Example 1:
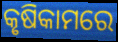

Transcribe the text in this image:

କୃଷିକାମରେ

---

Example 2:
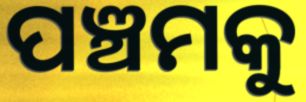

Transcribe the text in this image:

ପଞ୍ଚମକୁ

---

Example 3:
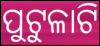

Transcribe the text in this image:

ପୁଟୁଳାଟି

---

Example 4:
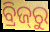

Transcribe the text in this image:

ବ୍ରିଜ୍‌ରୁ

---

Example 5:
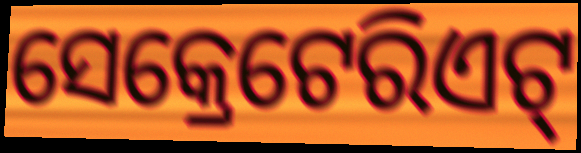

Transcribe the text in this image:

ସେକ୍ରେଟେରିଏଟ୍